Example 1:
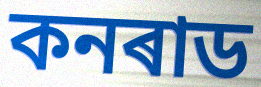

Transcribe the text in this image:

কনৰাড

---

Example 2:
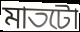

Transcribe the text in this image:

মাতটো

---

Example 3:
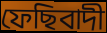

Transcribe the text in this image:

ফেছিবাদী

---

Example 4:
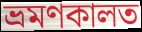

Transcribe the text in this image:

ভ্ৰমণকালত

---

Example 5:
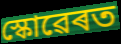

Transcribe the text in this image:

স্কোৱেৰত